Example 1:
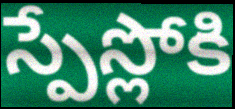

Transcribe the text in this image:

స్పేస్లోకి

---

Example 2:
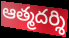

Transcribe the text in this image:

ఆత్మదర్శి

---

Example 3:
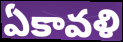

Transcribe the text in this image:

ఏకావళి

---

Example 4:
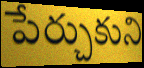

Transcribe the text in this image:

పేర్చుకుని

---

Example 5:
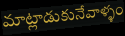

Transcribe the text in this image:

మాట్లాడుకునేవాళ్ళం